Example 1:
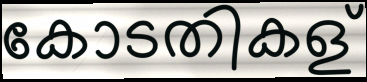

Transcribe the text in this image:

കോടതികള്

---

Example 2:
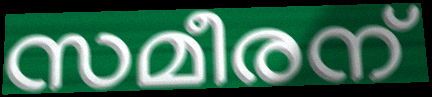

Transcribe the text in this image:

സമീരന്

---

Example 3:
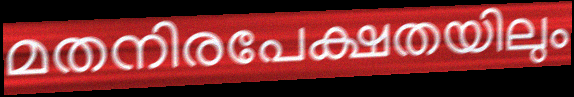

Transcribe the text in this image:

മതനിരപേക്ഷതയിലും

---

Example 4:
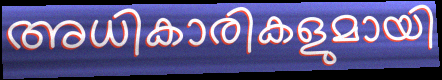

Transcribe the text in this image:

അധികാരികളുമായി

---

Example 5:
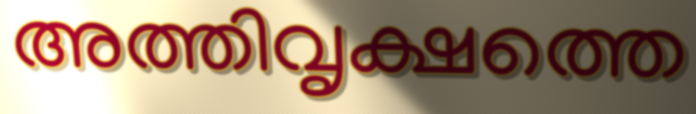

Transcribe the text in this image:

അത്തിവൃക്ഷത്തെ